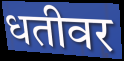
धतीवर